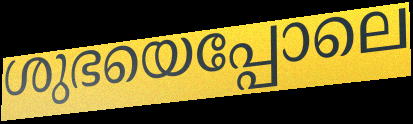
ശുഭയെപ്പോലെ